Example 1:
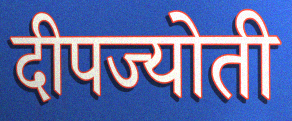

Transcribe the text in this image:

दीपज्योती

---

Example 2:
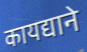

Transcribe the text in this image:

कायद्याने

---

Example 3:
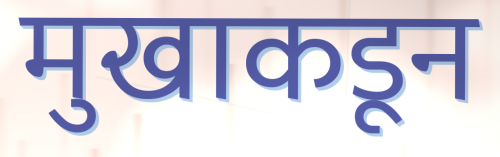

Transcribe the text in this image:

मुखाकडून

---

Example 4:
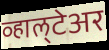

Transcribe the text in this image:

व्हाल्टेअर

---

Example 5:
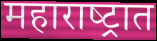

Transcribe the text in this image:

महाराष्‍ट्रात